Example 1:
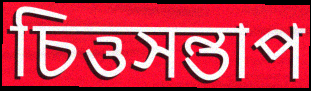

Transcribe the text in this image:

চিত্তসন্তাপ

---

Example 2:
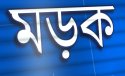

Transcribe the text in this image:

মড়ক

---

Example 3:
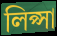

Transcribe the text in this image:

লিপ্সা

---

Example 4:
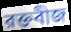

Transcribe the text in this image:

রক্তবীজ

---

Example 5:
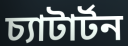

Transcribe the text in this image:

চ্যাটার্টন